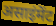
असाइंमेंट